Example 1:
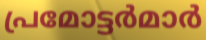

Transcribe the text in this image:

പ്രമോട്ടർമാർ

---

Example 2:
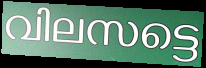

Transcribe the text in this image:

വിലസട്ടെ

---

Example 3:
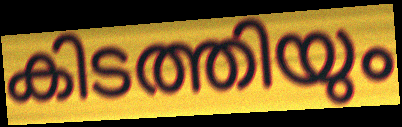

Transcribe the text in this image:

കിടത്തിയും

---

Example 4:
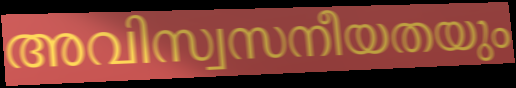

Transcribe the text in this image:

അവിസ്വസനീയതയും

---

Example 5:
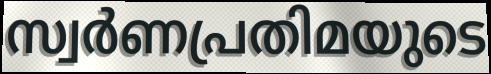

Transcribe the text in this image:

സ്വർണപ്രതിമയുടെ